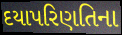
દયાપરિણતિના